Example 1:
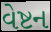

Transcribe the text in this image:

વેષ્ટન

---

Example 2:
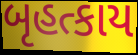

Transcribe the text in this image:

બૃહત્કાય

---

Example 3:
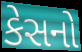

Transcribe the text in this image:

કેસનો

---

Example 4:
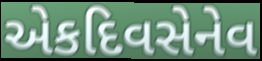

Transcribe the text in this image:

એકદિવસેનેવ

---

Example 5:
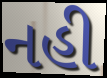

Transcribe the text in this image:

નહી